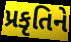
પ્રકૃતિને